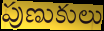
పుణుకులు